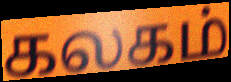
கலகம்